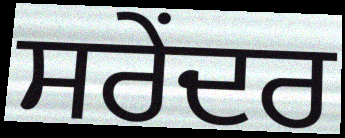
ਸਰੇਂਦਰ